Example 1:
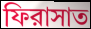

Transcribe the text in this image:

ফিরাসাত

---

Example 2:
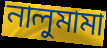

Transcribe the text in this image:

নালুমামা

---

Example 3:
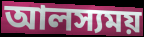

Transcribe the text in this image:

আলস্যময়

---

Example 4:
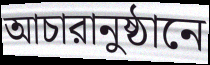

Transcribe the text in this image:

আচারানুষ্ঠানে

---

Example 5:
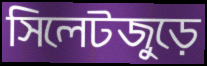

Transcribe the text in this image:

সিলেটজুড়ে